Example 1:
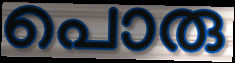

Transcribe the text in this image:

പൊരു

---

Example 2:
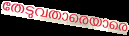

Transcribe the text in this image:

തേടുവതാരെയാരെ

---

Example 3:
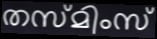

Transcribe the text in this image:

തസ്മിംസ്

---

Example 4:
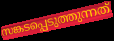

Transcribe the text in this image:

സങ്കടപ്പെടുത്തുന്നത്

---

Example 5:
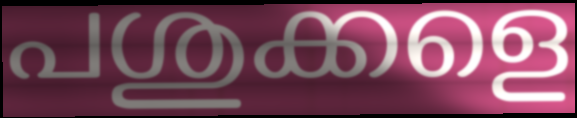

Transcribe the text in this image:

പശുക്കളെ